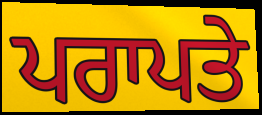
ਪਰਾਪਤੇ